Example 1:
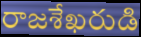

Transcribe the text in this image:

రాజశేఖరుడి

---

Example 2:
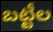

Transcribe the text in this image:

బట్టీల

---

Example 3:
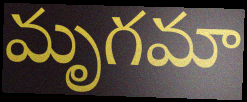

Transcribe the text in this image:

మృగమా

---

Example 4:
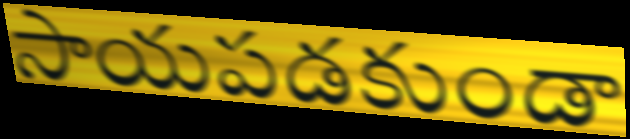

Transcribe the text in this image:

సాయపడకుండా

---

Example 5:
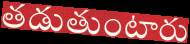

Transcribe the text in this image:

తడుతుంటారు